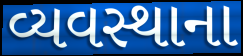
વ્યવસ્થાના